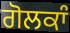
ਗੋਲਕਾੰ